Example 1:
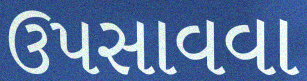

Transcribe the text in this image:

ઉપસાવવા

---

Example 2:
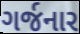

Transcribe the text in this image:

ગર્જનાર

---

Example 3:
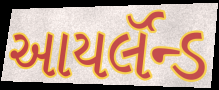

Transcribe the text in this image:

આયર્લૅન્ડ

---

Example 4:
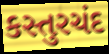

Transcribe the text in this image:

કસ્તુરચંદ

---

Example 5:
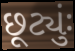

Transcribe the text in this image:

છૂટ્યુંઃ